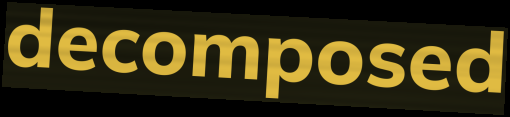
decomposed